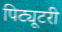
पिट्यूटरी